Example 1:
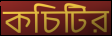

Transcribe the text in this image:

কচিটির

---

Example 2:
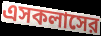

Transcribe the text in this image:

এসকলাসের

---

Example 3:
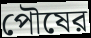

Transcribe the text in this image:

পৌষের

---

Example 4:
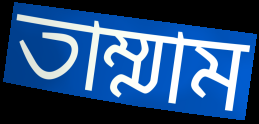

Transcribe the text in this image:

তাম্মাম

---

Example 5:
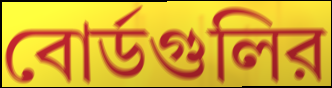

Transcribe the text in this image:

বোর্ডগুলির